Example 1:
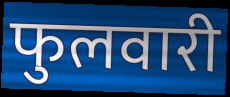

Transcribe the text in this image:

फुलवारी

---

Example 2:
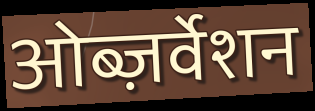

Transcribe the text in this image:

ओब्ज़र्वेशन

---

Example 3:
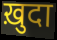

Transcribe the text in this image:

ख़ुदा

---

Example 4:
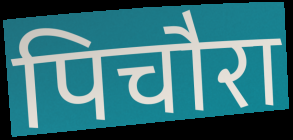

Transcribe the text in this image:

पिचौरा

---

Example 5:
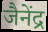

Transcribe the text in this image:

जैनेंद्र